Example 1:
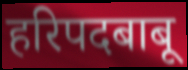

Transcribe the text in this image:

हरिपदबाबू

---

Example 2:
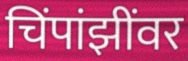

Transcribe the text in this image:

चिंपांझींवर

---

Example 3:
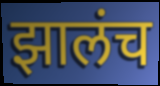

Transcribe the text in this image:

झालंच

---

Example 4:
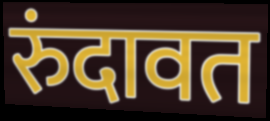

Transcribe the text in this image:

रुंदावत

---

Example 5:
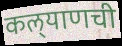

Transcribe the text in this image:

कल्याणची